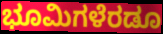
ಭೂಮಿಗಳೆರಡೂ